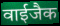
वाईजैक